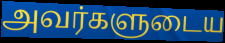
அவர்களுடைய